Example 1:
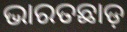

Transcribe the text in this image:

ଭାରତଛାଡ଼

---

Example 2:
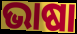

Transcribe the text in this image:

ଭାଷା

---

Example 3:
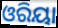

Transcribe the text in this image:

ଓରିୟା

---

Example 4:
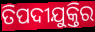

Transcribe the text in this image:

ତିପଦୀଯୁକ୍ତିର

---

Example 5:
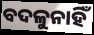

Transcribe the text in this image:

ବଦଳୁନାହିଁ